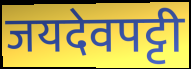
जयदेवपट्टी